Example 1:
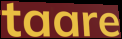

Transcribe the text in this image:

taare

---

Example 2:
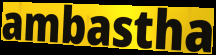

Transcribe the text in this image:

ambastha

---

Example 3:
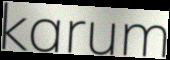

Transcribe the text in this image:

karum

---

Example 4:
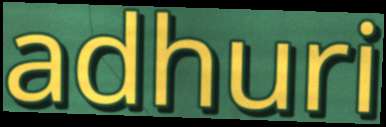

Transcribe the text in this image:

adhuri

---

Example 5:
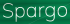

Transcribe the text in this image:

Spargo